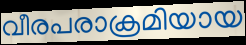
വീരപരാക്രമിയായ